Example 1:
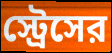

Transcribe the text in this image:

স্ট্রেসের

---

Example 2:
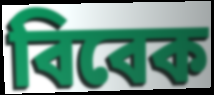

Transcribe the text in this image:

বিবেক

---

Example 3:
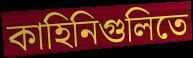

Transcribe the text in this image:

কাহিনিগুলিতে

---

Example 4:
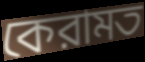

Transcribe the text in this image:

কেরামত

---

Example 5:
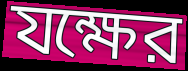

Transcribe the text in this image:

যক্ষের